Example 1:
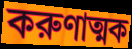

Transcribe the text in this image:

করুণাত্মক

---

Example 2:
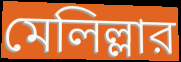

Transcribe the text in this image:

মেলিল্লার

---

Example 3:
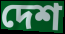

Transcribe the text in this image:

দেশ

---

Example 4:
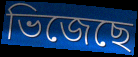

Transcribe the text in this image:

ভিজেছে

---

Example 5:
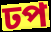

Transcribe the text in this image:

ঢপ